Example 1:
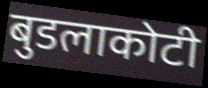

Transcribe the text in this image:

बुडलाकोटी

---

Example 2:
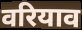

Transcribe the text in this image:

वरियाव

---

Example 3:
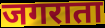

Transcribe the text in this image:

जगराता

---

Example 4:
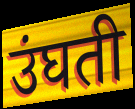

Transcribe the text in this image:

उंघती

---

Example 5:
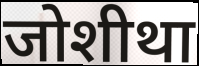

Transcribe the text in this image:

जोशीथा